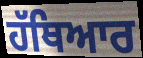
ਹੱਥਿਆਰ